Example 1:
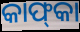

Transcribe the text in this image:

କାଫ୍‍କା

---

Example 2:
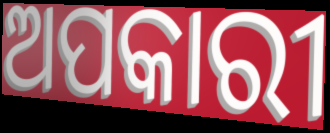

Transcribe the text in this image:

ଅପକାରୀ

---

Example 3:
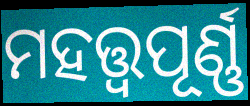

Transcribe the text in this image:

ମହତ୍ତ୍ୱପୂର୍ଣ୍ଣ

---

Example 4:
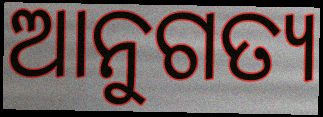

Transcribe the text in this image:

ଆନୁଗତ୍ୟ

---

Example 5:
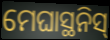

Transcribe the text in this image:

ମେଘାସ୍ଥନିସ୍